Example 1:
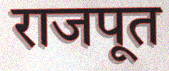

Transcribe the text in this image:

राजपूत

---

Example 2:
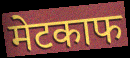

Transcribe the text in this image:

मेटकाफ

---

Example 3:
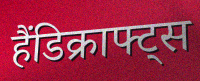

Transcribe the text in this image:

हैंडिक्राफ्ट्स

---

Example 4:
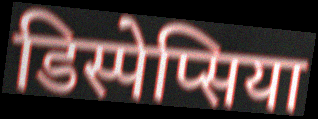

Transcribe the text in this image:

डिस्पेप्सिया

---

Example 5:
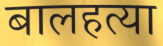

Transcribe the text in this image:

बालहत्या